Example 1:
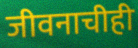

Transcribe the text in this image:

जीवनाचीही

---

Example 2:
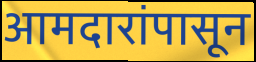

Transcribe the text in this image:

आमदारांपासून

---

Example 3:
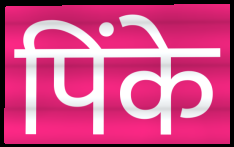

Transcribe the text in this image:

पिंके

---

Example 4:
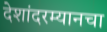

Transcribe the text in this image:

देशांदरम्यानचा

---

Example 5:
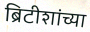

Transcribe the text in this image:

ब्रिटीशांच्या